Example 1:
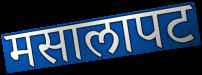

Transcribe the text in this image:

मसालापट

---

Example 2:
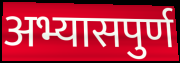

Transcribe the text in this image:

अभ्यासपुर्ण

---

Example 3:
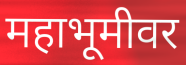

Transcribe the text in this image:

महाभूमीवर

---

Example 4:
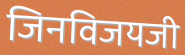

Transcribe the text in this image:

जिनविजयजी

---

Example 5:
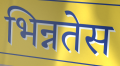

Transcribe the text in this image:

भिन्नतेस